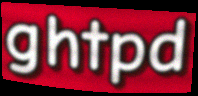
ghtpd